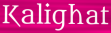
Kalighat